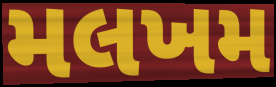
મલખમ